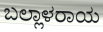
ಬಲ್ಲಾಳರಾಯ